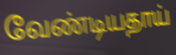
வேண்டியதாய்